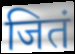
जितं